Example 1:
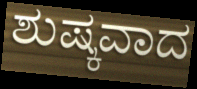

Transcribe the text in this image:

ಶುಷ್ಕವಾದ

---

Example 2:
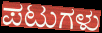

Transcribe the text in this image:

ಪಟುಗಳು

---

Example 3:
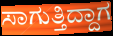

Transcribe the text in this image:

ಸಾಗುತ್ತಿದ್ದಾಗ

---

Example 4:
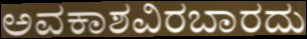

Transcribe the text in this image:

ಅವಕಾಶವಿರಬಾರದು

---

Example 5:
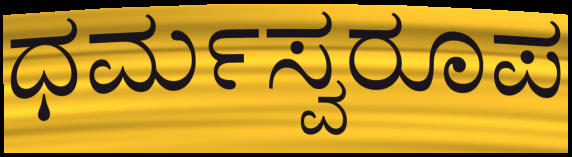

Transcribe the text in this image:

ಧರ್ಮಸ್ವರೂಪ